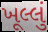
ખૂલ્લું